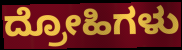
ದ್ರೋಹಿಗಳು